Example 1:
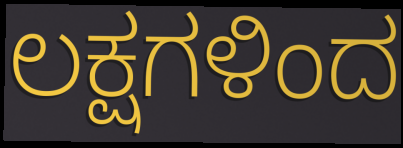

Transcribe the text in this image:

ಲಕ್ಷಗಳಿಂದ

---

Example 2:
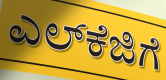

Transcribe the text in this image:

ಎಲ್‌ಕೆಜಿಗೆ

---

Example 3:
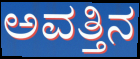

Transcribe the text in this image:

ಅವತ್ತಿನ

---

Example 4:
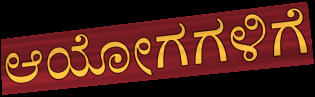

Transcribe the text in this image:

ಆಯೋಗಗಳಿಗೆ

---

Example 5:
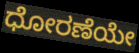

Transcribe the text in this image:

ಧೋರಣೆಯೇ